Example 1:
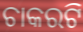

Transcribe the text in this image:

ଚାକରଟି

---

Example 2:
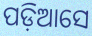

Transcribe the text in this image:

ପଡ଼ିଆସେ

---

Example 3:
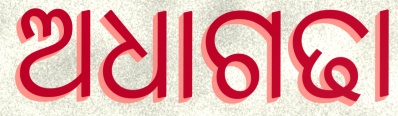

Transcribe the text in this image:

ଅଧାଗଢା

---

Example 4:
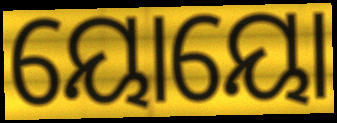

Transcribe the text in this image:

ୟୋୟୋ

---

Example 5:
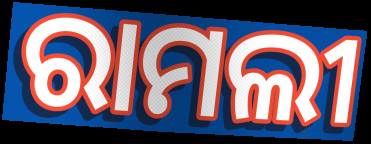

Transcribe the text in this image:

ରାମଲୀ